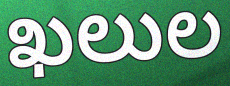
ఖలుల